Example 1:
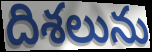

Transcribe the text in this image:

దిశలును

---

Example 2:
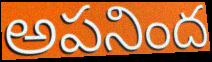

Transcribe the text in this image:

అపనింద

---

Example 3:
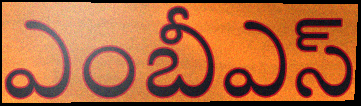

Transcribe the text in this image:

ఎంబీఎస్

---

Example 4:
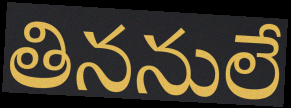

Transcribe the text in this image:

తిననులే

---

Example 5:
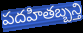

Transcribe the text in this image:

పదహితబ్బన్తి